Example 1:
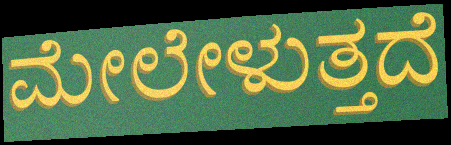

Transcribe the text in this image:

ಮೇಲೇಳುತ್ತದೆ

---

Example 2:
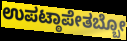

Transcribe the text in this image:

ಉಪಟ್ಠಾಪೇತಬ್ಬೋ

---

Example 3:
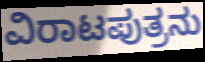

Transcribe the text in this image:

ವಿರಾಟಪುತ್ರನು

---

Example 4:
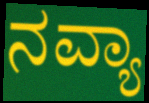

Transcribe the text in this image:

ನವ್ಯಾ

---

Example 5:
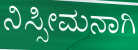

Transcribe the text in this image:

ನಿಸ್ಸೀಮನಾಗಿ